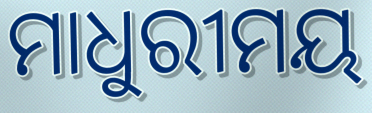
ମାଧୁରୀମୟ